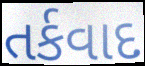
તર્કવાદ